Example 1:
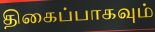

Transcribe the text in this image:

திகைப்பாகவும்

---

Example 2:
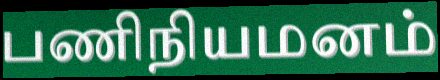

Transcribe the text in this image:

பணிநியமனம்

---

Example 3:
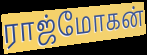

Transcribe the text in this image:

ராஜ்மோகன்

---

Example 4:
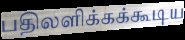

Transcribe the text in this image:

பதிலளிக்கக்கூடிய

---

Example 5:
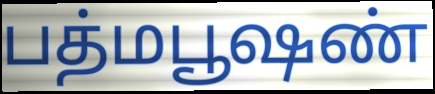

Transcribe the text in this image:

பத்மபூஷண்